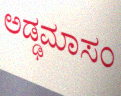
ಅಡ್ಢಮಾಸಂ